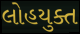
લોહયુક્ત